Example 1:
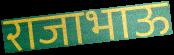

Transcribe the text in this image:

राजाभाऊ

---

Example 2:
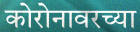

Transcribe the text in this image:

कोरोनावरच्या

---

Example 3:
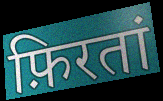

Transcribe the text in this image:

फ़िरतां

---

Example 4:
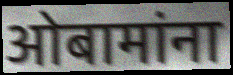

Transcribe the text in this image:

ओबामांना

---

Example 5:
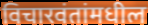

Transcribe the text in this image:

विचारवंतांमधील